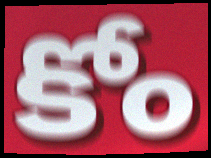
కోం